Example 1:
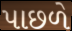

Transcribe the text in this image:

પાછળે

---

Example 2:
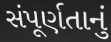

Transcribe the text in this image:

સંપૂર્ણતાનું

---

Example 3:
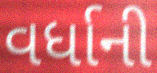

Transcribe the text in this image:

વર્ધાની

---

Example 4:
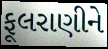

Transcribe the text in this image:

ફૂલરાણીને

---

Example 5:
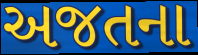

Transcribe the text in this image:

અજતના